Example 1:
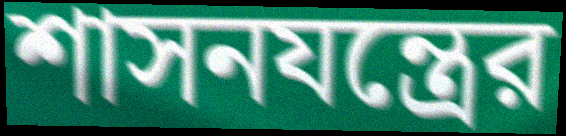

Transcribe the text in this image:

শাসনযন্ত্রের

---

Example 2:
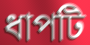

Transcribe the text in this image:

ধাপটি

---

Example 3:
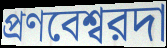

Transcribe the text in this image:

প্রণবেশ্বরদা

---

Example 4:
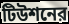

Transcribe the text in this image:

টিউশনের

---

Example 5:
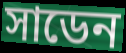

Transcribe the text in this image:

সাডেন